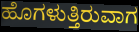
ಹೊಗಳುತ್ತಿರುವಾಗ